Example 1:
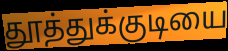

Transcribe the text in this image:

தூத்துக்குடியை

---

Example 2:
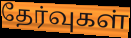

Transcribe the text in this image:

தேர்வுகள்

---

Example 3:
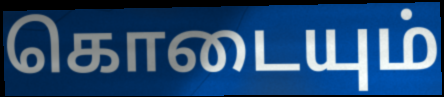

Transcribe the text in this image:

கொடையும்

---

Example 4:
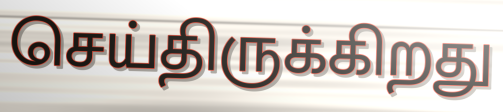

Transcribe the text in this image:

செய்திருக்கிறது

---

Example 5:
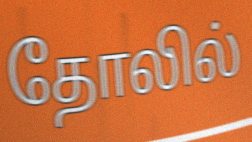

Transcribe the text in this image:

தோலில்